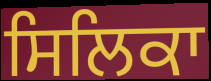
ਸਿਲਿਕਾ